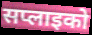
सप्लाइको